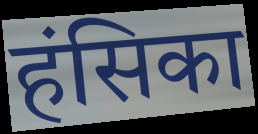
हंसिका